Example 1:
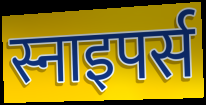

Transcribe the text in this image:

स्नाइपर्स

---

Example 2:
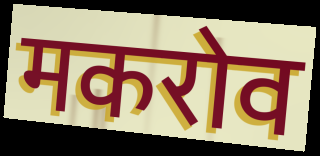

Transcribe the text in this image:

मकरोव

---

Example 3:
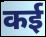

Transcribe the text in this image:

कई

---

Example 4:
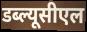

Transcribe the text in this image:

डब्ल्यूसीएल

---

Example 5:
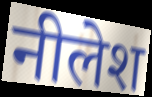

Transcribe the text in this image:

नीलेश